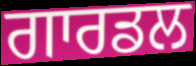
ਗਾਰਡਲ